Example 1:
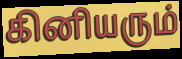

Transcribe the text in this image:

கினியரும்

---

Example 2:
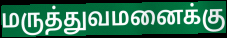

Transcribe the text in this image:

மருத்துவமனைக்கு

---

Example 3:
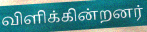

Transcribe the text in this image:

விளிக்கின்றனர்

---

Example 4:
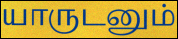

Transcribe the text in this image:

யாருடனும்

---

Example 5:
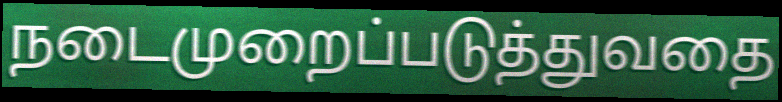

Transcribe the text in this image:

நடைமுறைப்படுத்துவதை